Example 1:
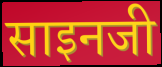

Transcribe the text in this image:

साइनजी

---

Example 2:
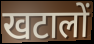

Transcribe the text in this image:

खटालों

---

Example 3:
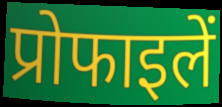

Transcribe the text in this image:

प्रोफाइलें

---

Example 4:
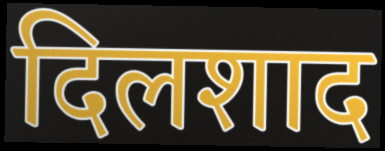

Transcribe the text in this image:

दिलशाद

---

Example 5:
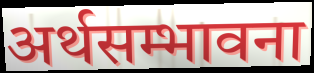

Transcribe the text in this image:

अर्थसम्भावना